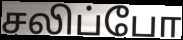
சலிப்போ